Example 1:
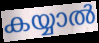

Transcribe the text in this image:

കയ്യാൽ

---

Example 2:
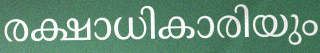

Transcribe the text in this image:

രക്ഷാധികാരിയും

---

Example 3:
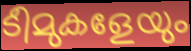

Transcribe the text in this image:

ടീമുകളേയും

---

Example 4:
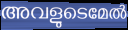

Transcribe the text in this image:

അവളുടെമേൽ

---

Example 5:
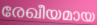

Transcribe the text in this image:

രേഖീയമായ